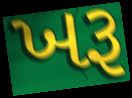
ખરૂ